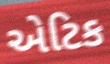
એટિક